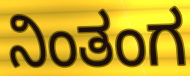
ನಿಂತಂಗ